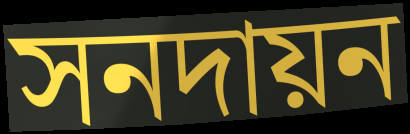
সনদায়ন